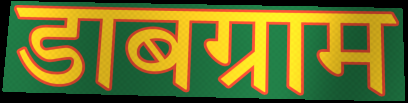
डाबग्राम